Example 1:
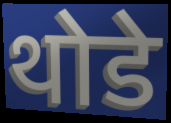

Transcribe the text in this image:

थोडे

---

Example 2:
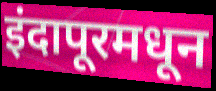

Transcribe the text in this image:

इंदापूरमधून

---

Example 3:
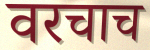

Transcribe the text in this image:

वरचाच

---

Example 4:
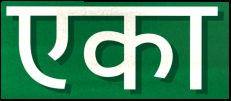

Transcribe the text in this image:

एका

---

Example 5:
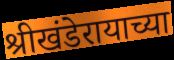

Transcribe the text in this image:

श्रीखंडेरायाच्या